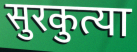
सुरकुत्या